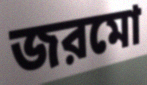
জরমো